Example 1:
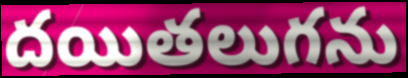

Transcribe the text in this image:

దయితలుగను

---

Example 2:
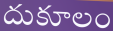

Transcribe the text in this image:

దుకూలం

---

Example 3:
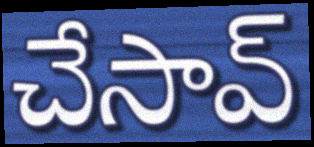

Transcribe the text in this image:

చేసావ్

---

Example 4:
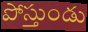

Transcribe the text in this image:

పోస్తుండు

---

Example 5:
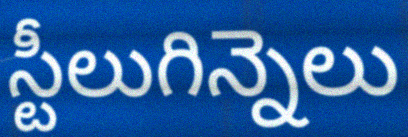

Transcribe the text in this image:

స్టీలుగిన్నెలు